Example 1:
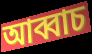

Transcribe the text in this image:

আব্বাচ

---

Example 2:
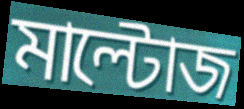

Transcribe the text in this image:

মাল্টোজ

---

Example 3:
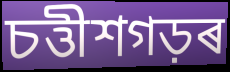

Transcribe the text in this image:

চত্তীশগড়ৰ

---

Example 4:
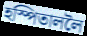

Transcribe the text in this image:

হস্পিতাললৈ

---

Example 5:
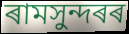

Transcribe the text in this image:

ৰামসুন্দৰৰ